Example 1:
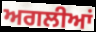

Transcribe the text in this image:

ਅਗਲੀਆਂ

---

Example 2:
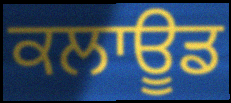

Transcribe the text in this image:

ਕਲਾਊਡ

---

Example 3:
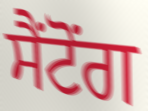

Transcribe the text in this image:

ਸੈਂਟੋਂਗ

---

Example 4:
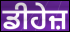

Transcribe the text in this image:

ਡੀਹੇਜ਼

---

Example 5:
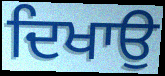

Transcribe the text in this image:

ਦਿਖਾਉ